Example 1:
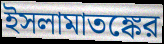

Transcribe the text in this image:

ইসলামাতঙ্কের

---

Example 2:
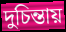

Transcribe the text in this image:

দুচিন্তায়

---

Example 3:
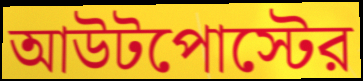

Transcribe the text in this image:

আউটপোস্টের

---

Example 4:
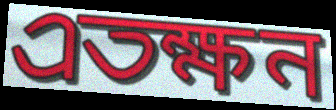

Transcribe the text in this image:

এতক্ষন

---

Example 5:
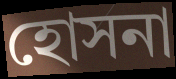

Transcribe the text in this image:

হোসনা